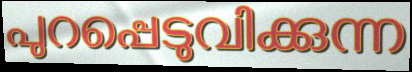
പുറപ്പെടുവിക്കുന്ന